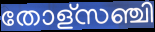
തോള്സഞ്ചി